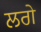
ਲਗੇ